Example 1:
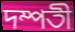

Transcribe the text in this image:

দম্পতী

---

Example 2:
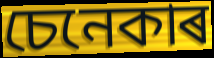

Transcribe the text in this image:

চেনেকাৰ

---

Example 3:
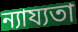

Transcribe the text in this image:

ন্যায্যতা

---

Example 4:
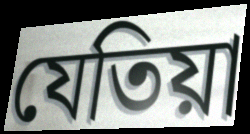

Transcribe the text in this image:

যেতিয়া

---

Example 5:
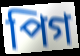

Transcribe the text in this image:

পিগ